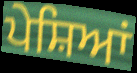
ਪੇਸ਼ਿਆਂ